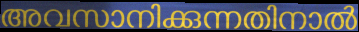
അവസാനിക്കുന്നതിനാൽ